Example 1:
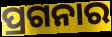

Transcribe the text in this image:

ପ୍ରଗନାର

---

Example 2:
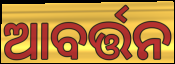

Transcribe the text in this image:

ଆବର୍ତ୍ତନ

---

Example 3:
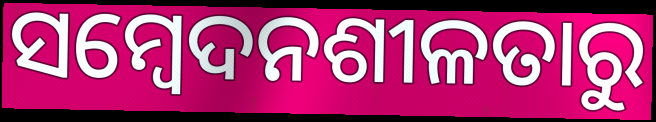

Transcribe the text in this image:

ସମ୍ବେଦନଶୀଳତାରୁ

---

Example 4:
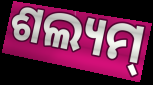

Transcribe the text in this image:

ଶଲ୍ୟମ୍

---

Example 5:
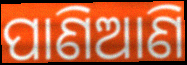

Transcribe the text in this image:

ପାଣିଆଣି